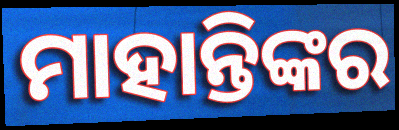
ମାହାନ୍ତିଙ୍କର